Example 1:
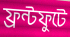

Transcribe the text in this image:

ফ্রন্টফুটে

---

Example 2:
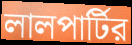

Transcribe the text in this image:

লালপার্টির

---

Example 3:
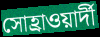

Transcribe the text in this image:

সোহ্রাওয়ার্দী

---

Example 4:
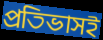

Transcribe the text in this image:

প্রতিভাসই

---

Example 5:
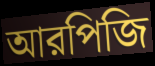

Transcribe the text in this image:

আরপিজি